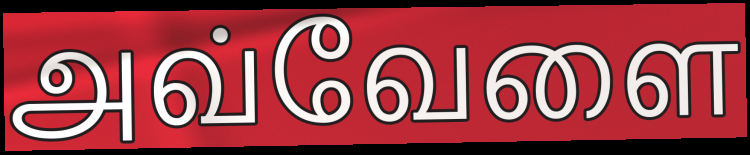
அவ்வேளை